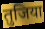
तुजिया